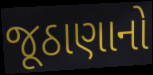
જૂઠાણાનો